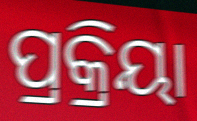
ପ୍ରକ୍ରିୟା